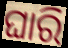
ଘାରି